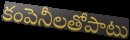
కంపెనీలతోపాటు